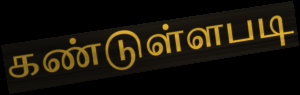
கண்டுள்ளபடி